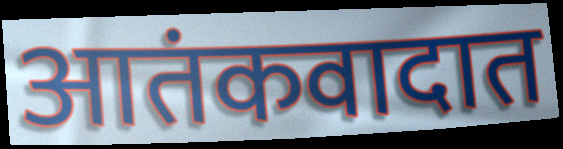
आतंकवादात